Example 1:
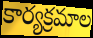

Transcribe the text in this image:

కార్యక్రమాల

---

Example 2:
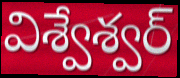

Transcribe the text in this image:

విశ్వేశ్వర్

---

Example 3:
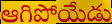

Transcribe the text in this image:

ఆగిపోయేడు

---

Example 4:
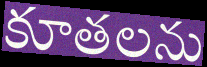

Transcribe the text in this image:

కూతలను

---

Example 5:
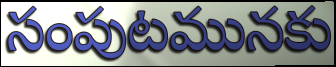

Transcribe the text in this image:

సంపుటమునకు